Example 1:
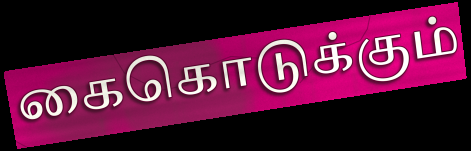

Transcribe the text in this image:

கைகொடுக்கும்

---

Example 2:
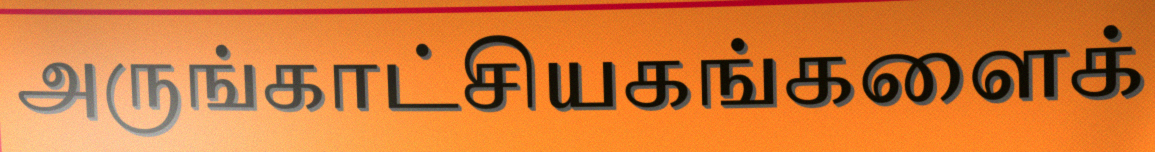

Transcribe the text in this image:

அருங்காட்சியகங்களைக்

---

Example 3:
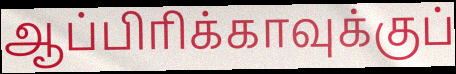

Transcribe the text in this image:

ஆப்பிரிக்காவுக்குப்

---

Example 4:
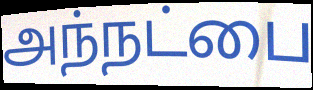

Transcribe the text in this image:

அந்நட்பை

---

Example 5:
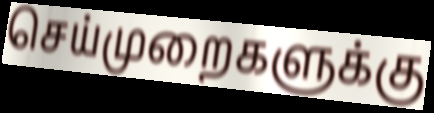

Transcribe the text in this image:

செய்முறைகளுக்கு